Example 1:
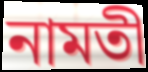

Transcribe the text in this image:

নামতী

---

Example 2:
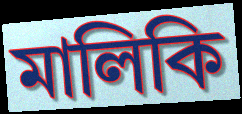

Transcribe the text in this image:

মালিকি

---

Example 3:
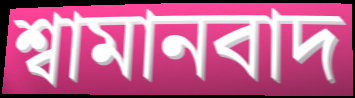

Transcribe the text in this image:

শ্বামানবাদ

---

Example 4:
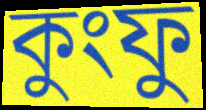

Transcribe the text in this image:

কুংফু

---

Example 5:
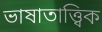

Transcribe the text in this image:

ভাষাতাত্ত্বিক